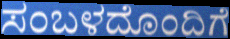
ಸಂಬಳದೊಂದಿಗೆ